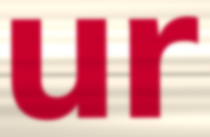
ur